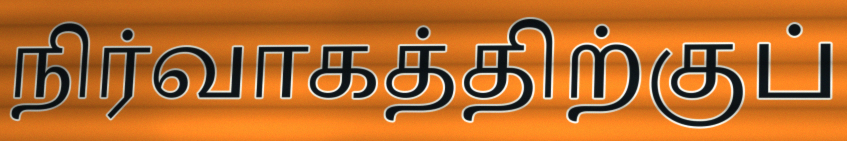
நிர்வாகத்திற்குப்